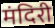
मंदिरी